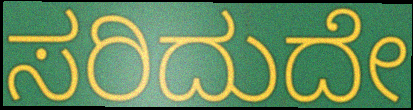
ಸರಿದುದೇ